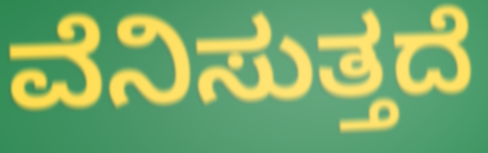
ವೆನಿಸುತ್ತದೆ